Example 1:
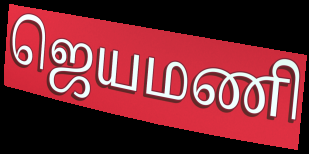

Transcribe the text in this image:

ஜெயமணி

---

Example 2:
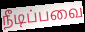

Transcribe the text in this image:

நீடிப்பவை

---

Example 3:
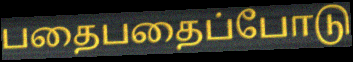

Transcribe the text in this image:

பதைபதைப்போடு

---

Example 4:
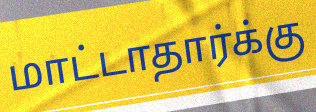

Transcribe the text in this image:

மாட்டாதார்க்கு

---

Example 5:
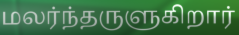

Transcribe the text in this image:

மலர்ந்தருளுகிறார்